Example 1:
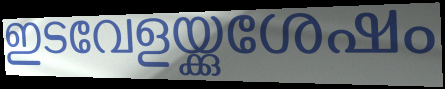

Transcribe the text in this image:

ഇടവേളയ്ക്കുശേഷം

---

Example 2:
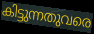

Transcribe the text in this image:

കിട്ടുന്നതുവരെ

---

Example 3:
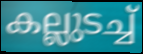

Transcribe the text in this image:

കല്ലുടച്ച്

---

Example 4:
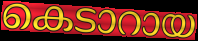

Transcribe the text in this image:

കെടാറായ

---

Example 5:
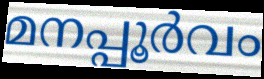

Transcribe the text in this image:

മനപ്പൂർവം